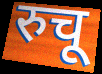
रुचू